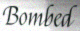
Bombed